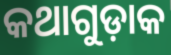
କଥାଗୁଡ଼ାକ